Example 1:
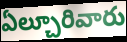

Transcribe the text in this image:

ఏల్చూరివారు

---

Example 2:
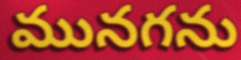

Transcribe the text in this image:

మునగను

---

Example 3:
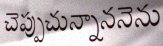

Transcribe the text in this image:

చెప్పుచున్నాననెను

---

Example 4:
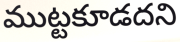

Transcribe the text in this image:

ముట్టకూడదని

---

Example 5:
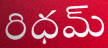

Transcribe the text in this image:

రిధమ్